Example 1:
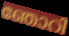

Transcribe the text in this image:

ഞോറി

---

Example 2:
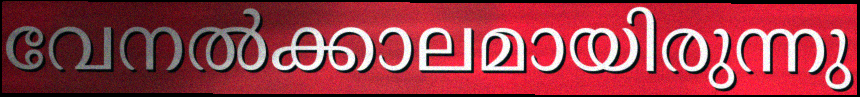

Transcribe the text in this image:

വേനൽക്കാലമായിരുന്നു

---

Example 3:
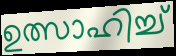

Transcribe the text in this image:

ഉത്സാഹിച്ച്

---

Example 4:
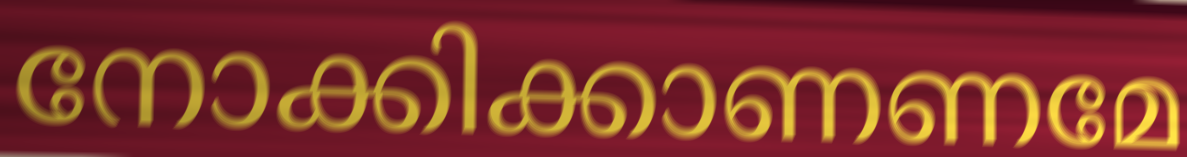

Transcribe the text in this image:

നോക്കിക്കാണണമേ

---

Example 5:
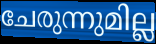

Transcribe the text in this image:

ചേരുന്നുമില്ല